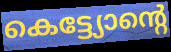
കെട്ട്യോന്റെ